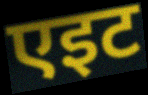
एइट